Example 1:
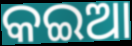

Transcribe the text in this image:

କଇଆ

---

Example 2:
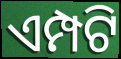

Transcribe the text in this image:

ଏମ୍ପଟି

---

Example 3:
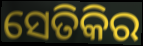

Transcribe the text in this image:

ସେତିକିର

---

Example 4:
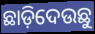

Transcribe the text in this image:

ଛାଡ଼ିଦେଉଛୁ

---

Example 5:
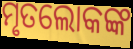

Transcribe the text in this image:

ମୃତଲୋକଙ୍କ